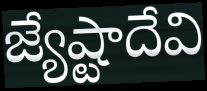
జ్యేష్టాదేవి